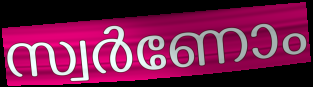
സ്വർണോം